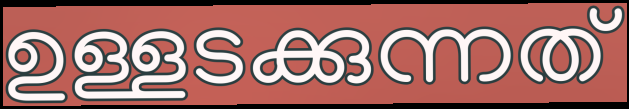
ഉള്ളടക്കുന്നത്